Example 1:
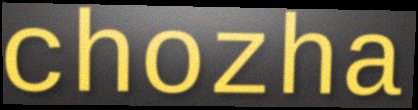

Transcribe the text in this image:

chozha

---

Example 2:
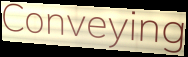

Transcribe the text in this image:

Conveying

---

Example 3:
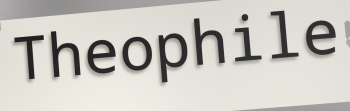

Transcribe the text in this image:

Theophile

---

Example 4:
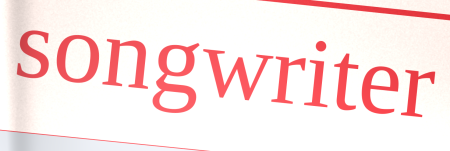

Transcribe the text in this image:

songwriter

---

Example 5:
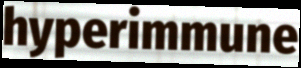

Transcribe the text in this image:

hyperimmune